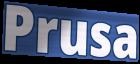
Prusa